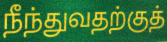
நீந்துவதற்குத்